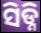
ସିଡ୍ନି